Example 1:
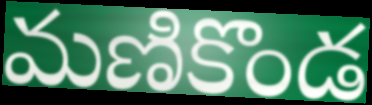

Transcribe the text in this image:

మణికొండ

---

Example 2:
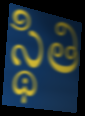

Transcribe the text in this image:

స్థితి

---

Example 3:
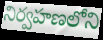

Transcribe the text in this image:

నిర్వహణలోని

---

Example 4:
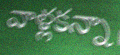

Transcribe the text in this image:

వాళ్లకన్నా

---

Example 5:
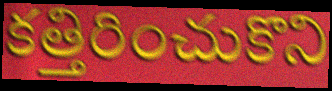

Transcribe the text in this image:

కత్తిరించుకొని